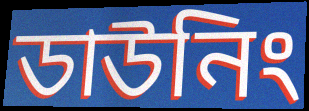
ডাউনিং